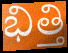
భిత్తి